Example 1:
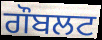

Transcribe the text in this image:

ਗੌਬਲਟ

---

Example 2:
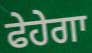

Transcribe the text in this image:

ਫੇਹੇਗਾ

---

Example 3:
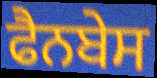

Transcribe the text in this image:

ਫੈਨਬੇਸ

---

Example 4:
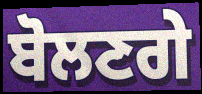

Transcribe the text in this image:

ਬੋਲਣਗੇ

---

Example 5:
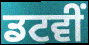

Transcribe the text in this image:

ਡਟਵੀਂ